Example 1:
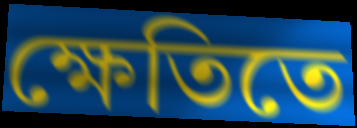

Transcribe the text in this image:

ক্ষেতিতে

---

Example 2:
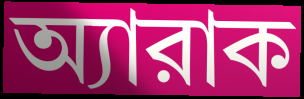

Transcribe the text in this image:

অ্যারাক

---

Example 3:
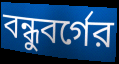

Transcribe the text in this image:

বন্ধুবর্গের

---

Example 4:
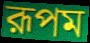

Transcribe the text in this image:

রূপম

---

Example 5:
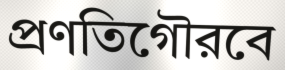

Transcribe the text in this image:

প্রণতিগৌরবে